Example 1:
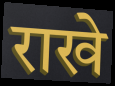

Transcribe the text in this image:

राखे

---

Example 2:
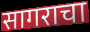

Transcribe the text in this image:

सागराचा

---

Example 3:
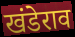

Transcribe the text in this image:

खंडेराव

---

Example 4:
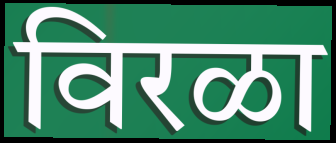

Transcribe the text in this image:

विरळा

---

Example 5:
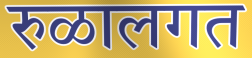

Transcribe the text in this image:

रुळालगत